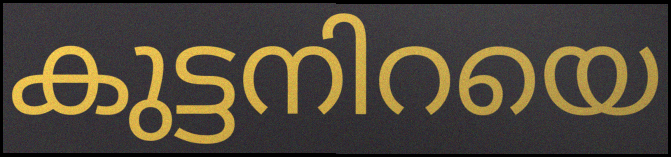
കുട്ടനിറയെ